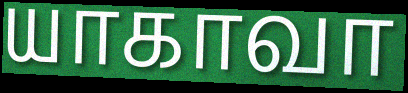
யாகாவா